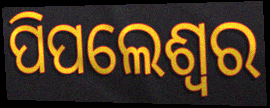
ପିପଲେଶ୍ୱର